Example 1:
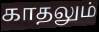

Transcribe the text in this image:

காதலும்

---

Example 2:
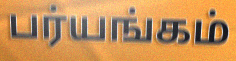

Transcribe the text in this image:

பர்யங்கம்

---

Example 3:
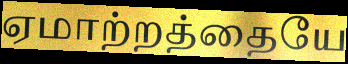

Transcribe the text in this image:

ஏமாற்றத்தையே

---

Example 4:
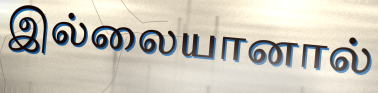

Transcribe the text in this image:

இல்லையானால்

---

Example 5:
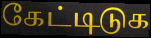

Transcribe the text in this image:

கேட்டிடுக